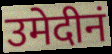
उमेदीनं